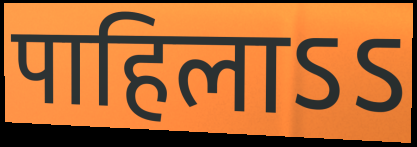
पाहिलाऽऽ